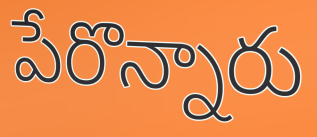
పేరొన్నారు